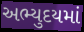
અભ્યુદયમાં